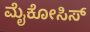
ಮೈಕೋಸಿಸ್